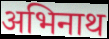
अभिनाथ